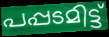
പപ്പടമിട്ട്